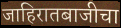
जाहिरातबाजीचा